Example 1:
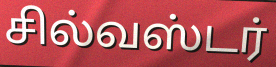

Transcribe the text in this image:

சில்வஸ்டர்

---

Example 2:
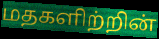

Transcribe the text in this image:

மதகளிற்றின்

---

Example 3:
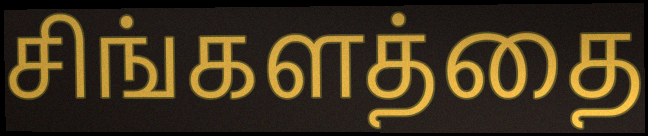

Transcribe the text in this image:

சிங்களத்தை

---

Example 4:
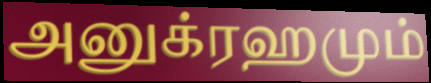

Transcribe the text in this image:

அனுக்ரஹமும்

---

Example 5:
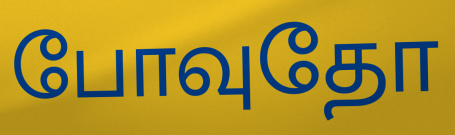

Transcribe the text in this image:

போவுதோ